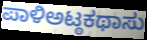
ಪಾಳಿಅಟ್ಠಕಥಾಸು